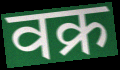
वक्र